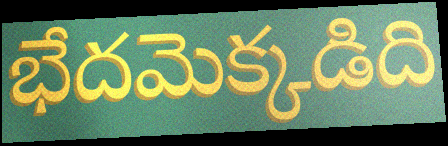
భేదమెక్కడిది